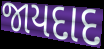
જાયદાદ